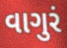
વાગુરં